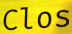
Clos